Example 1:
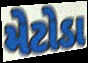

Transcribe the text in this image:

મેટોડા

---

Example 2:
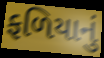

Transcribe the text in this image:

ફળિયાનું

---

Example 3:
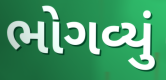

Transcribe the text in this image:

ભોગવ્યું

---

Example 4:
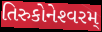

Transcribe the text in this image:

તિરુકોનેશ્‍વરમ્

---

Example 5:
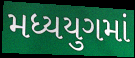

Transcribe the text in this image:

મધ્યયુગમાં